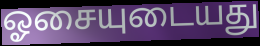
ஓசையுடையது